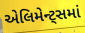
એલિમેન્ટ્સમાં